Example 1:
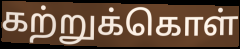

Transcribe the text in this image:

கற்றுக்கொள்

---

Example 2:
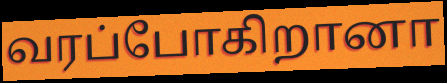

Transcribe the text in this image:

வரப்போகிறானா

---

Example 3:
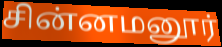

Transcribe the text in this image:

சின்னமனூர்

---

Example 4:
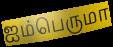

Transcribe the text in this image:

ஐம்பெருமா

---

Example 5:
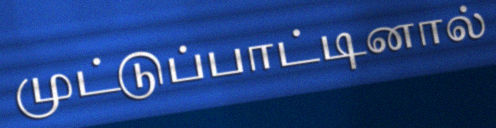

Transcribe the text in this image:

முட்டுப்பாட்டினால்